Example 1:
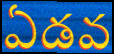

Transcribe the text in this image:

ఏడవ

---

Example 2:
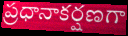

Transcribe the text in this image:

ప్రధానాకర్షణగా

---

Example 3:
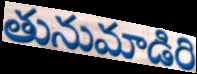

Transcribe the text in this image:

తునుమాడిరి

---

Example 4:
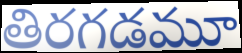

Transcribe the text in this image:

తిరగడమూ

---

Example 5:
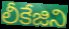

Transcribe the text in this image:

లీకేజిని